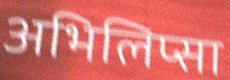
अभिलिप्सा